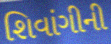
શિવાંગીની